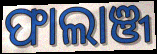
ଫାଲାଞ୍ଜ